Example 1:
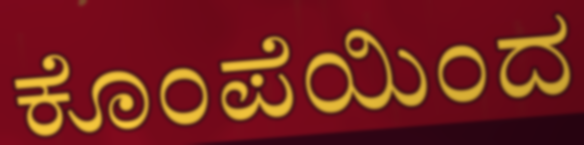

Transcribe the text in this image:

ಕೊಂಪೆಯಿಂದ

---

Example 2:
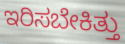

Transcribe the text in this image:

ಇರಿಸಬೇಕಿತ್ತು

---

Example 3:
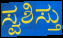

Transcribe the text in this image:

ಸ್ವಶಿಸ್ತು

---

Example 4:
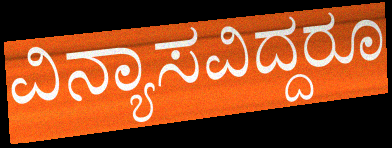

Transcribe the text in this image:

ವಿನ್ಯಾಸವಿದ್ದರೂ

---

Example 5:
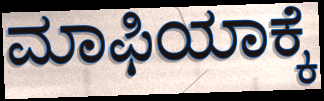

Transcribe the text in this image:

ಮಾಫಿಯಾಕ್ಕೆ